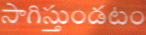
సాగిస్తుండటం